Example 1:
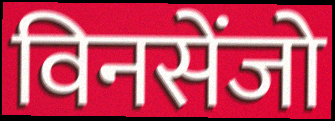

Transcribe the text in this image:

विनसेंजो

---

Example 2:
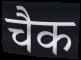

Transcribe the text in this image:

चैक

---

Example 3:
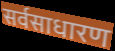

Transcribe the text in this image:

सर्वसाधारण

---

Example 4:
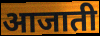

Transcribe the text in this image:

आजाती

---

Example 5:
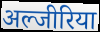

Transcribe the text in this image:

अल्जीरिया